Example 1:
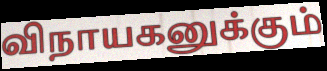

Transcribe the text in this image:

விநாயகனுக்கும்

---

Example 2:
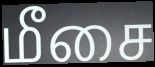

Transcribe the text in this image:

மீசை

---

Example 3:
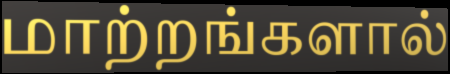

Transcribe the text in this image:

மாற்றங்களால்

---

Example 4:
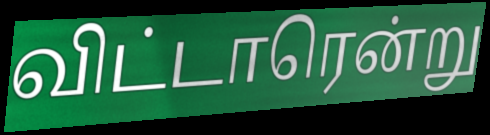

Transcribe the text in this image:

விட்டாரென்று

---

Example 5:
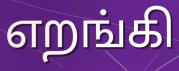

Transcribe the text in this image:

எறங்கி